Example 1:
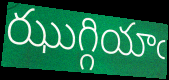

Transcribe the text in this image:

ఝుగ్గియాఁ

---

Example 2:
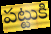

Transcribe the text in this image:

పట్టుకి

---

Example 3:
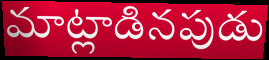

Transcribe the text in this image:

మాట్లాడినపుడు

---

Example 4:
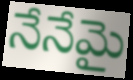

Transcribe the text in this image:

నేనేమై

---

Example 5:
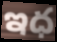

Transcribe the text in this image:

ఇధ